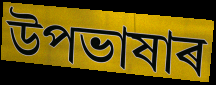
উপভাষাৰ